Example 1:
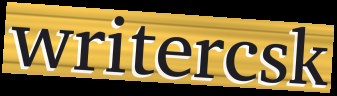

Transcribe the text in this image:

writercsk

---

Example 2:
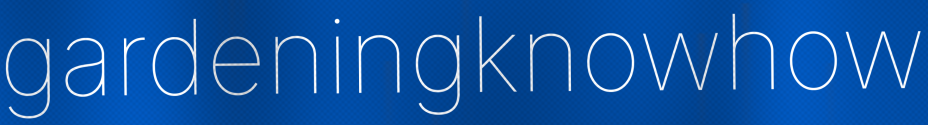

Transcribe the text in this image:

gardeningknowhow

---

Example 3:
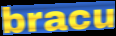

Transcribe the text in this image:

bracu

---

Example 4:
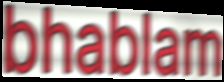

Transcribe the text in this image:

bhablam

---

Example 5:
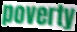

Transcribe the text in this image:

poverty